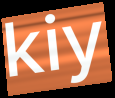
kiy